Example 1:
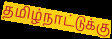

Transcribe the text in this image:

தமிழ்நாட்டுக்கு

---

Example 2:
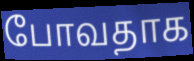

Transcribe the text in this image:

போவதாக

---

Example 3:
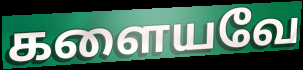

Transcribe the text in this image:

களையவே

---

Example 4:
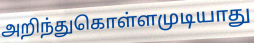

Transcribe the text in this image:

அறிந்துகொள்ளமுடியாது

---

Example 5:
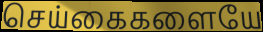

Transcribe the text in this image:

செய்கைகளையே